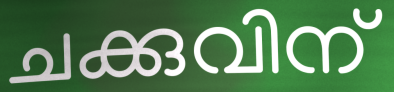
ചക്കുവിന്